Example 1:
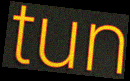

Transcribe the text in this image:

tun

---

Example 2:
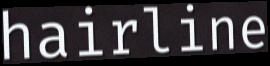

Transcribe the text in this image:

hairline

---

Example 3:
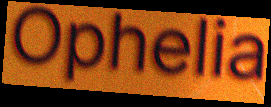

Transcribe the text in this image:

Ophelia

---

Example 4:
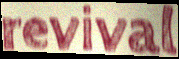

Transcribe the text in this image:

revival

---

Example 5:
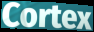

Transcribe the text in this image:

Cortex